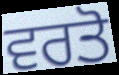
ਵਰਤੋ